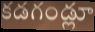
కడగండ్లూ